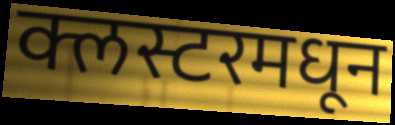
क्लस्टरमधून